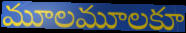
మూలమూలకూ